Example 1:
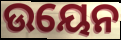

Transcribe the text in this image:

ଉୟେନ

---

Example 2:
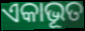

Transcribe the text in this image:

ଏକାଭୂତ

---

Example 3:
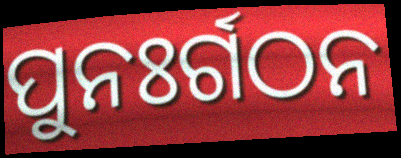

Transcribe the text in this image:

ପୁନଃର୍ଗଠନ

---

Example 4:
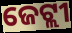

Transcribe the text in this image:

ଜେଟ୍ଲୀ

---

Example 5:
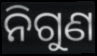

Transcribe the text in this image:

ନିଗୁଣ